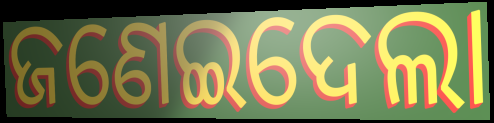
ଜଣେଇଦେଲା